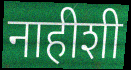
नाहीशी